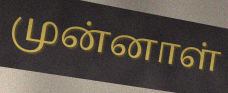
முன்னாள்